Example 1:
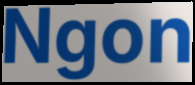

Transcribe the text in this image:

Ngon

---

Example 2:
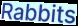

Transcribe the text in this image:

Rabbits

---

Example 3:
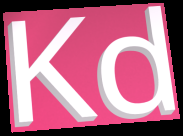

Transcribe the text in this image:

Kd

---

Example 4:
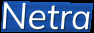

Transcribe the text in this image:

Netra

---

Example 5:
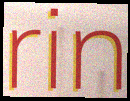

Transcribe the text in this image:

rin